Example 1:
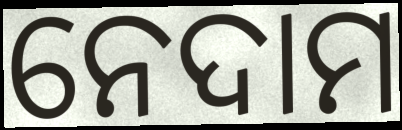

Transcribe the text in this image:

ନେଦାମ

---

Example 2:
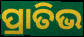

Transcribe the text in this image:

ପ୍ରାତିଭ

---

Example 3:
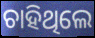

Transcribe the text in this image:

ଚାହିଥିଲେ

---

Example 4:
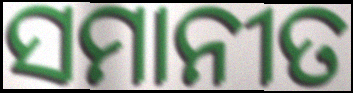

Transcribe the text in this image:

ସମାନୀତ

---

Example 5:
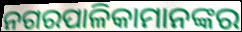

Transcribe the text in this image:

ନଗରପାଳିକାମାନଙ୍କର